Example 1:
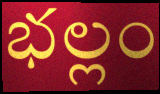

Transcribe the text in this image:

భల్లం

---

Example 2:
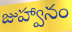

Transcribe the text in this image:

జుహ్వానం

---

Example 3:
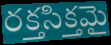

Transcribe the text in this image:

రక్తసిక్తమై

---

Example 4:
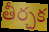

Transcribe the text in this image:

తీర్చక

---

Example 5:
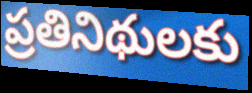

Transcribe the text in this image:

ప్రతినిథులకు